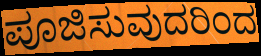
ಪೂಜಿಸುವುದರಿಂದ